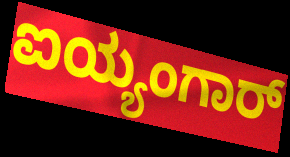
ಐಯ್ಯಂಗಾರ್